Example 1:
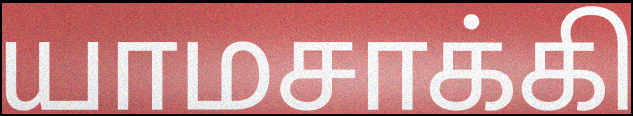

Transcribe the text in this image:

யாமசாக்கி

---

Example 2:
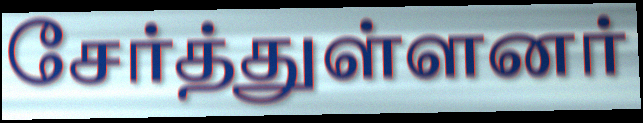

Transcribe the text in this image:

சேர்த்துள்ளனர்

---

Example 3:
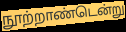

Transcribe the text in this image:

நூற்றாண்டென்று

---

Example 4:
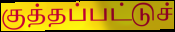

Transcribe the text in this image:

குத்தப்பட்டுச்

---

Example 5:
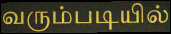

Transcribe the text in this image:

வரும்படியில்